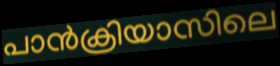
പാൻക്രിയാസിലെ